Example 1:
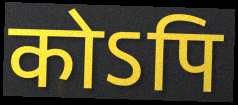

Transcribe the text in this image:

कोऽपि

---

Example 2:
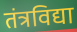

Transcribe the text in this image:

तंत्रविद्या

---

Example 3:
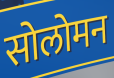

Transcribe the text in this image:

सोलोमन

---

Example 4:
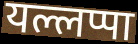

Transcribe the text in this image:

यल्लप्पा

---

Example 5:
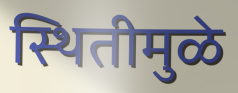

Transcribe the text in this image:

स्थितीमुळे